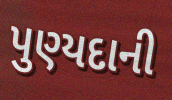
પુણ્યદાની